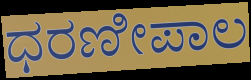
ಧರಣೀಪಾಲ